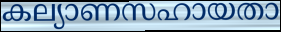
കല്യാണസഹായതാ